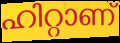
ഹിറ്റാണ്